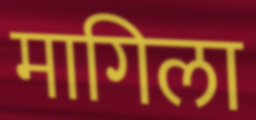
मागिला